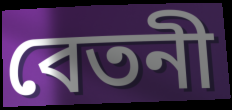
বেতনী